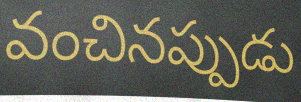
వంచినప్పుడు